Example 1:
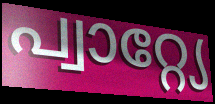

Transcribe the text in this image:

പ്വാറ്റ്യേ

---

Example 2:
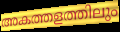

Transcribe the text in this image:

അകത്തളത്തിലും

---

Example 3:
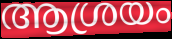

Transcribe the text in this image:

ആശ്രയം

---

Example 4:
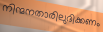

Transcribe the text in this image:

നിന്മനതാരിലുദിക്കണം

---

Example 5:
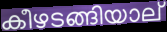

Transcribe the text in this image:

കീഴടങ്ങിയാല്